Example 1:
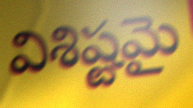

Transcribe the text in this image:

విశిష్టమై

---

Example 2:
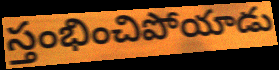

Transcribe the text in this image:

స్తంభించిపోయాడు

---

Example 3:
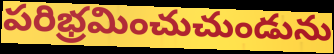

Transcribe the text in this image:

పరిభ్రమించుచుండును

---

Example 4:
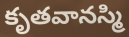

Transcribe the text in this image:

కృతవానస్మి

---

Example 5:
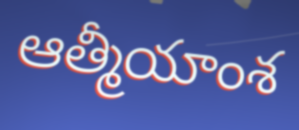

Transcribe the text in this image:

ఆత్మీయాంశ